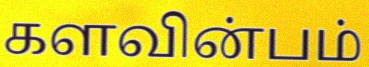
களவின்பம்